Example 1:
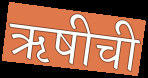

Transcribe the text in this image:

ऋषीची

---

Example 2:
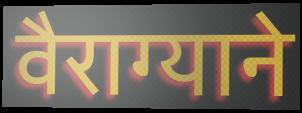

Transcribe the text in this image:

वैराग्याने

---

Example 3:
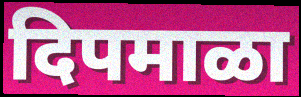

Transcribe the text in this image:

दिपमाळा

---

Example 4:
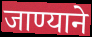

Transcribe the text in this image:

जाण्याने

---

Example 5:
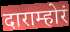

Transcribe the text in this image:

दाराम्होरं